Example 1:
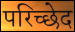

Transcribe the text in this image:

परिच्छेद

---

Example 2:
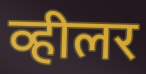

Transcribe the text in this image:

व्हीलर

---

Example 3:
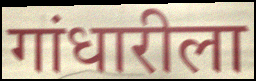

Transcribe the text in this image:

गांधारीला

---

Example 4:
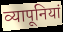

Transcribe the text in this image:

व्यापूनियां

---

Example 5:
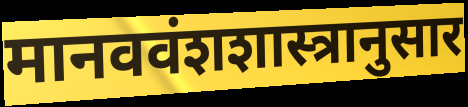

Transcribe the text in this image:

मानववंशशास्त्रानुसार